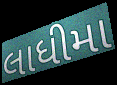
લાધીમા